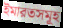
ইমারতসমূহ